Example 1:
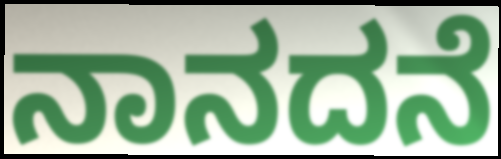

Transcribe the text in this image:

ನಾನದನೆ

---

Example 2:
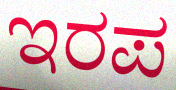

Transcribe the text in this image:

ಇರಪ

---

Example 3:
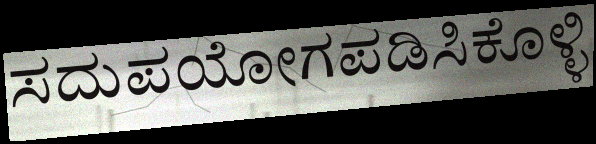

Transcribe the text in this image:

ಸದುಪಯೋಗಪಡಿಸಿಕೊಳ್ಳಿ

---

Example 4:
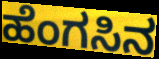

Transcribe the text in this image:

ಹೆಂಗಸಿನ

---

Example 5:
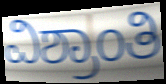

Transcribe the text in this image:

ವಿಶ್ರಾಂತಿ